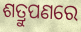
ଶତ୍ରୁପଣରେ